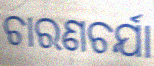
ଚାରଣଚର୍ଯା